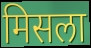
मिसला